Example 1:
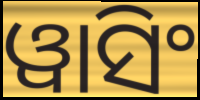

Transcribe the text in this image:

ୱାସିଂ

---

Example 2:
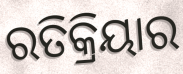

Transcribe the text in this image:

ରତିକ୍ରିୟାର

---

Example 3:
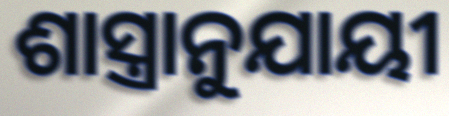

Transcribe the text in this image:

ଶାସ୍ତ୍ରାନୁଯାୟୀ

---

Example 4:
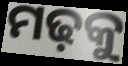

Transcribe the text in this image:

ମଢ଼କୁ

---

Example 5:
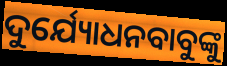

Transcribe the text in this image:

ଦୁର୍ଯ୍ୟୋଧନବାବୁଙ୍କୁ